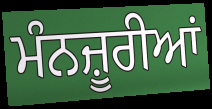
ਮੰਨਜ਼ੂਰੀਆਂ